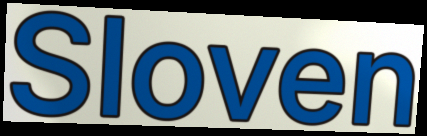
Sloven